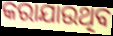
କରାଯାଉଥିବ